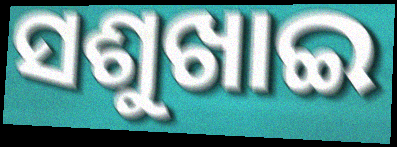
ସଶୁଖାଇ